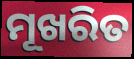
ମୂଖରିତ